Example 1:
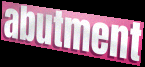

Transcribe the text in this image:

abutment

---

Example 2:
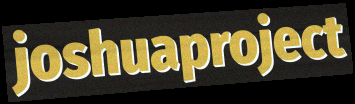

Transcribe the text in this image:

joshuaproject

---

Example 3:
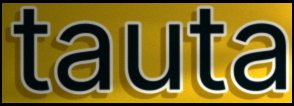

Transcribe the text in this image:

tauta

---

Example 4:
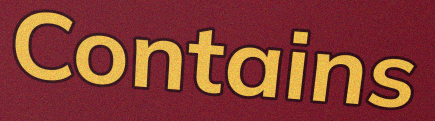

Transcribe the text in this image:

Contains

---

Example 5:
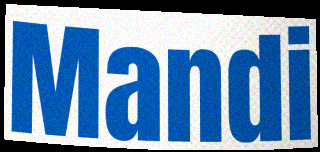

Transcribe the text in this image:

Mandi